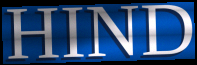
HIND